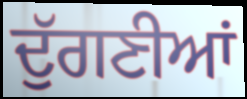
ਦੁੱਗਣੀਆਂ